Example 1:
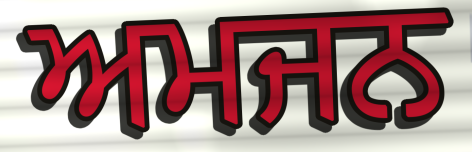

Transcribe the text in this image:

ਅਮਜਨ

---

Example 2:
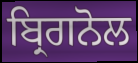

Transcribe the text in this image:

ਬ੍ਰਿਗਨੋਲ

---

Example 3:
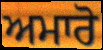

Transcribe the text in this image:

ਅਮਾਰੋ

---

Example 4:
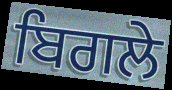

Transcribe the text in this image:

ਬਿਗਲੇ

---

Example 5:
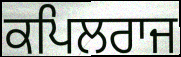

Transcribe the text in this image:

ਕਪਿਲਰਾਜ